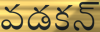
వడకన్